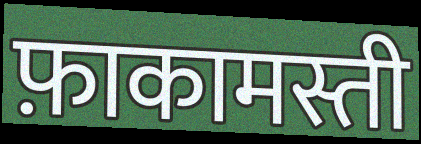
फ़ाकामस्ती